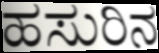
ಹಸುರಿನ